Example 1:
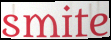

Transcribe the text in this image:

smite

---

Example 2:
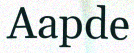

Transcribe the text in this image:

Aapde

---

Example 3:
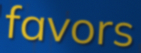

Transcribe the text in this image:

favors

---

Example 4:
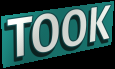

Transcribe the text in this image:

TOOK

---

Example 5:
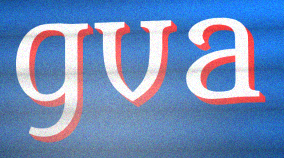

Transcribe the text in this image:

gua